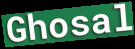
Ghosal